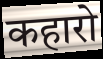
कहारो